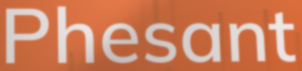
Phesant